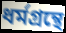
ধর্মগ্রন্থে